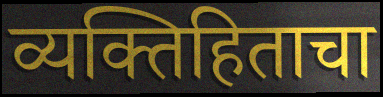
व्यक्तिहिताचा